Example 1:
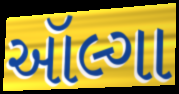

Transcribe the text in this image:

ઑલ્ગા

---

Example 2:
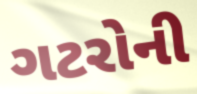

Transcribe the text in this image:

ગટરોની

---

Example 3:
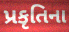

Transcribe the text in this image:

પ્રકૃતિના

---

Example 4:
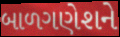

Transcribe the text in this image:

બાળગણેશને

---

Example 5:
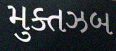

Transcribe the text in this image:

મુક્તઝબ